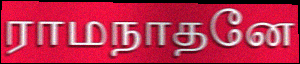
ராமநாதனே